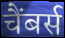
चैंबर्स